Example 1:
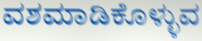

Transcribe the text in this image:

ವಶಮಾಡಿಕೊಳ್ಳುವ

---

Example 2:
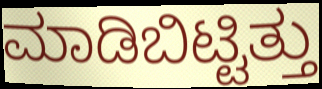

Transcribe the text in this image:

ಮಾಡಿಬಿಟ್ಟಿತ್ತು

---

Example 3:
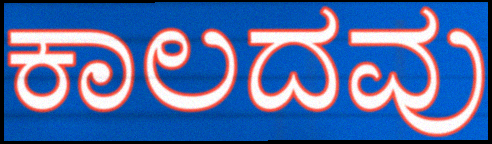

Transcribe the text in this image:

ಕಾಲದವು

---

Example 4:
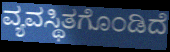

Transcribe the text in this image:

ವ್ಯವಸ್ಥಿತಗೊಂಡಿದೆ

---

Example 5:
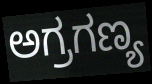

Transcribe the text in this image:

ಅಗ್ರಗಣ್ಯ